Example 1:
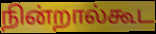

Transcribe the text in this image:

நின்றால்கூட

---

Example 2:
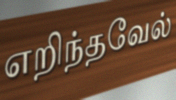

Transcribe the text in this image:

எறிந்தவேல்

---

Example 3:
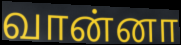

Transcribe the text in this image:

வான்னா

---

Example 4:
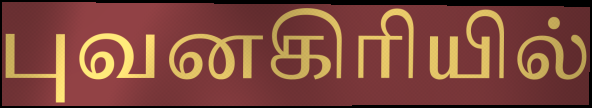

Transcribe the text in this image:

புவனகிரியில்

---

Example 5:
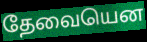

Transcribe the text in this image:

தேவையென